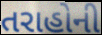
તરાહોની